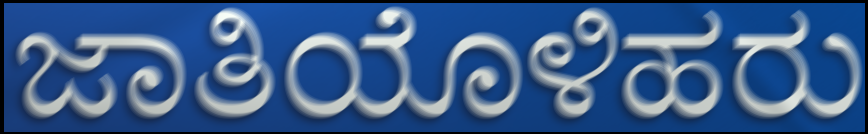
ಜಾತಿಯೊಳಿಹರು